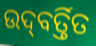
ଉଦ୍‌ବର୍ତ୍ତିତ